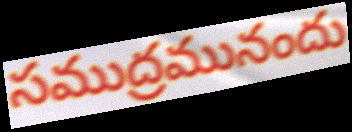
సముద్రమునందు